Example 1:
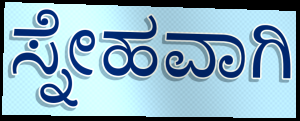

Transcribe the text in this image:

ಸ್ನೇಹವಾಗಿ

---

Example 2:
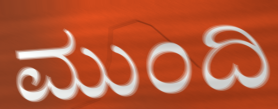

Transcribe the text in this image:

ಮುಂದಿ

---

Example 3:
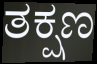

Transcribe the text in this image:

ತಕ್ಷಣ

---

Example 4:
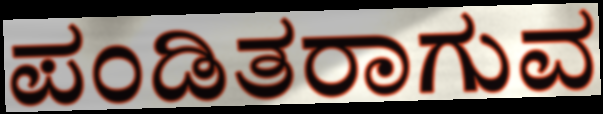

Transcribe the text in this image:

ಪಂಡಿತರಾಗುವ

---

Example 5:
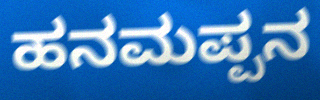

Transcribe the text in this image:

ಹನಮಪ್ಪನ